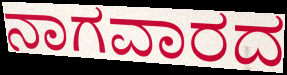
ನಾಗವಾರದ